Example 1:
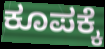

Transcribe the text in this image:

ಕೂಪಕ್ಕೆ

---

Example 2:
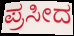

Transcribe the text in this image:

ಪ್ರಸೀದ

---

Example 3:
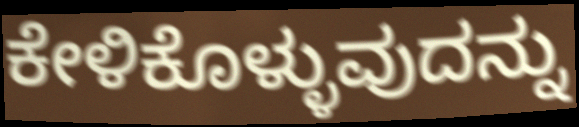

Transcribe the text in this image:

ಕೇಳಿಕೊಳ್ಳುವುದನ್ನು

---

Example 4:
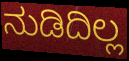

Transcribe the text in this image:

ನುಡಿದಿಲ್ಲ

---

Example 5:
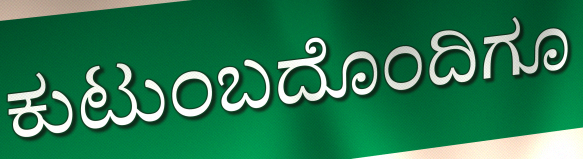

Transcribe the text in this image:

ಕುಟುಂಬದೊಂದಿಗೂ